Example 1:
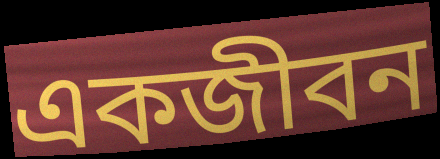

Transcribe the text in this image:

একজীবন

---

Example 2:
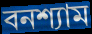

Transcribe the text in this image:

বনশ্যাম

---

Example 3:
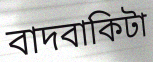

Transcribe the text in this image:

বাদবাকিটা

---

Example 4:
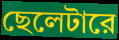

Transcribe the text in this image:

ছেলেটারে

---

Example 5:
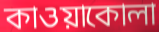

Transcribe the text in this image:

কাওয়াকোলা